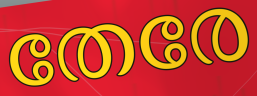
തേരേ